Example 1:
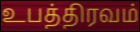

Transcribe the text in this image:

உபத்திரவம்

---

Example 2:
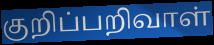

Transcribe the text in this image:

குறிப்பறிவாள்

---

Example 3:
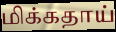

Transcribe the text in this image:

மிக்கதாய்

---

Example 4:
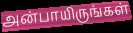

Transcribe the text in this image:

அன்பாயிருங்கள்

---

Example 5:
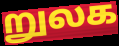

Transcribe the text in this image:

றுலக